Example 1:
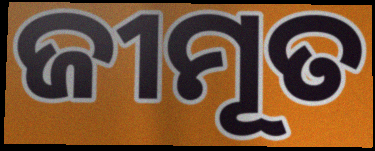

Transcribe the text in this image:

ଜୀମୂତ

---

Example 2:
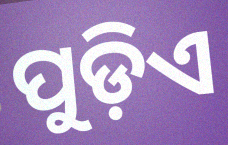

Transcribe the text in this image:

ପୁଡ଼ିଏ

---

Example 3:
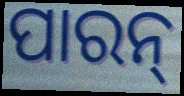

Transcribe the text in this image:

ପାରନ୍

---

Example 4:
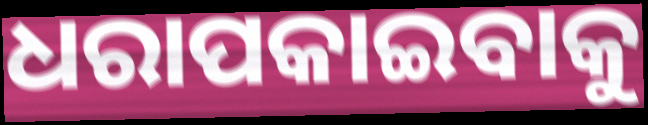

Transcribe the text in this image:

ଧରାପକାଇବାକୁ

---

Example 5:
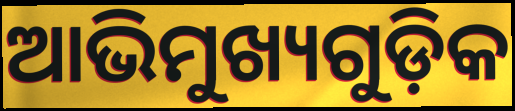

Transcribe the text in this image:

ଆଭିମୁଖ୍ୟଗୁଡ଼ିକ